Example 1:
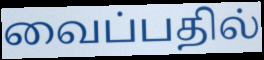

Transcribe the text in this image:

வைப்பதில்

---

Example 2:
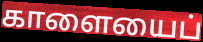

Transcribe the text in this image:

காளையைப்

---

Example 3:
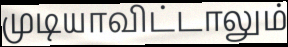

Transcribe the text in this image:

முடியாவிட்டாலும்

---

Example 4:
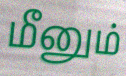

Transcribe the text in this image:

மீனும்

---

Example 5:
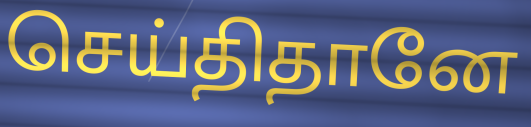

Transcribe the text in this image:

செய்திதானே